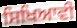
ਸਿਖਿਆਵੀ